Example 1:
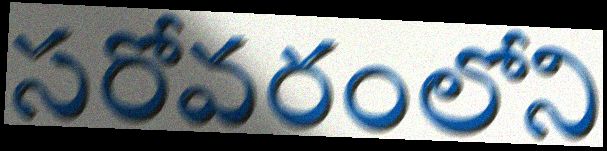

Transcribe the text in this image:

సరోవరంలోని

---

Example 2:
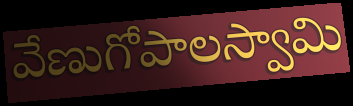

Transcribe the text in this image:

వేణుగోపాలస్వామి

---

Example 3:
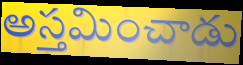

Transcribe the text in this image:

అస్తమించాడు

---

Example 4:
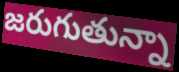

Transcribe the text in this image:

జరుగుతున్నా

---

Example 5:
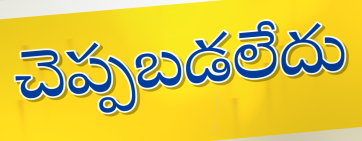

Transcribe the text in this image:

చెప్పబడలేదు